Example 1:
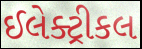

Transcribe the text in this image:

ઈલેક્ટ્રીકલ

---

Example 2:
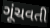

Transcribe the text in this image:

ગૂંચવતી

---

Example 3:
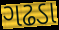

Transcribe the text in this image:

ગઢડા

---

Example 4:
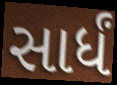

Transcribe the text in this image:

સાર્ધં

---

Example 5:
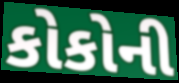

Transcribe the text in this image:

કોકોની